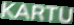
KARTU